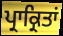
ਪ੍ਰਾਕ੍ਰਿਤਾਂ